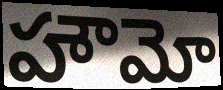
హౌమో